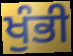
ਖੁੰਭੀ